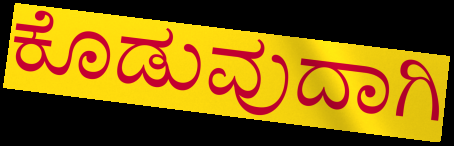
ಕೊಡುವುದಾಗಿ